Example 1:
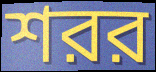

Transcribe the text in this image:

শরর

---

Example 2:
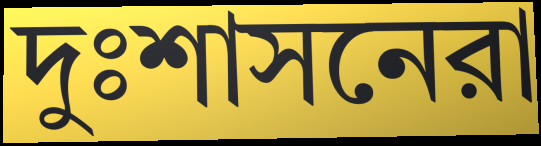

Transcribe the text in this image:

দুঃশাসনেরা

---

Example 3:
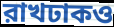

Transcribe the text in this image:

রাখঢাকও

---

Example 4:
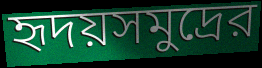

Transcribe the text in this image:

হৃদয়সমুদ্রের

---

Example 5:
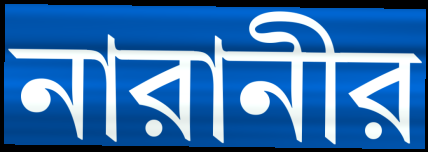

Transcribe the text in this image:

নারানীর